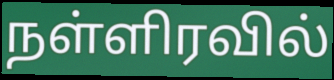
நள்ளிரவில்